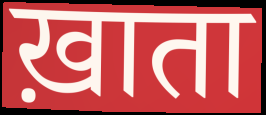
ख़ाता